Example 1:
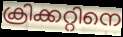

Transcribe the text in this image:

ക്രിക്കറ്റിനെ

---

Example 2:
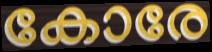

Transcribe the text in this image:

കോരേ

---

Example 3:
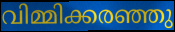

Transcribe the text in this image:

വിമ്മിക്കരഞ്ഞു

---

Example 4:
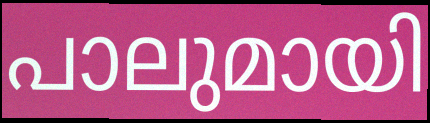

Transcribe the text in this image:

പാലുമായി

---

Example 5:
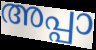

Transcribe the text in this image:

അപ്പാ